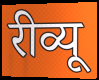
रीव्यू